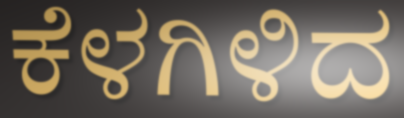
ಕೆಳಗಿಳಿದ